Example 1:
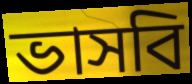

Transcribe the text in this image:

ভাসবি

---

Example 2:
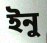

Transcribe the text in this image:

ইনু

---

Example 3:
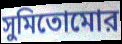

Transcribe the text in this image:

সুমিতোমোর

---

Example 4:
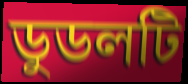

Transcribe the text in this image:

ডুডলটি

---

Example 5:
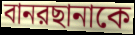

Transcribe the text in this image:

বানরছানাকে